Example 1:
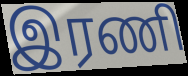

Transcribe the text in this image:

இரணி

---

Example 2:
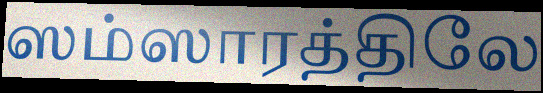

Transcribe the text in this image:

ஸம்ஸாரத்திலே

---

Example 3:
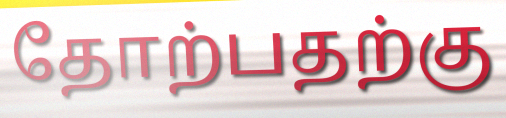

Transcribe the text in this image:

தோற்பதற்கு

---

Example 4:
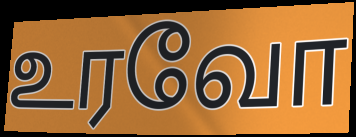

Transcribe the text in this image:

உரவோ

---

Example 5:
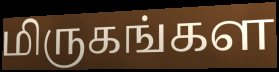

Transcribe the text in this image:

மிருகங்கள